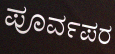
ಪೂರ್ವಪರ